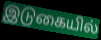
இடுகையில்